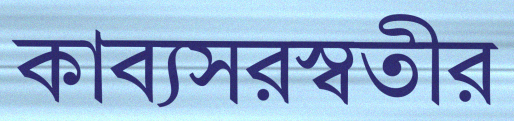
কাব্যসরস্বতীর